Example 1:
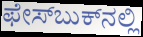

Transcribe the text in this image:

ಫೇಸ್‌ಬುಕ್‌ನಲ್ಲಿ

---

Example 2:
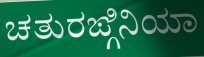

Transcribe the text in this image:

ಚತುರಙ್ಗಿನಿಯಾ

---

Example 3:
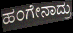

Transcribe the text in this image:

ಹಂಗೇನಾದ್ರು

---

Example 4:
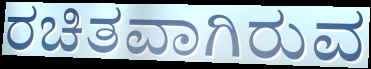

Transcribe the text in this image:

ರಚಿತವಾಗಿರುವ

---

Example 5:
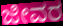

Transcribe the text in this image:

ಜೀವರ